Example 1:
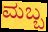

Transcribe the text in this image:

ಮಬ್ಬ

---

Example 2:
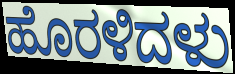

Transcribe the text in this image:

ಹೊರಳಿದಳು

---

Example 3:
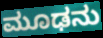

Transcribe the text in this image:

ಮೂಢನು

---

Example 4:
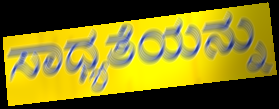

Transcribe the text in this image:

ಸಾಧ್ಯತೆಯನ್ನು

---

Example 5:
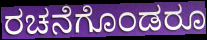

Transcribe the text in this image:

ರಚನೆಗೊಂಡರೂ